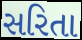
સરિતા